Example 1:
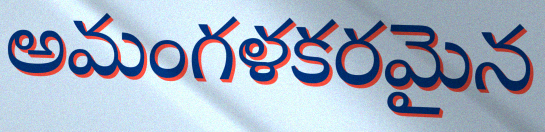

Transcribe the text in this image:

అమంగళకరమైన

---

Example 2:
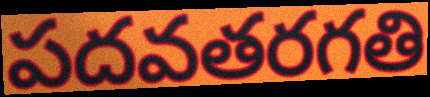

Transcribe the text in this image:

పదవతరగతి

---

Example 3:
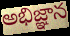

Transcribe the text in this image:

అభిజ్ఞాన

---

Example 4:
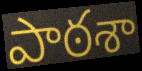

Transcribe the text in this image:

పాఠశా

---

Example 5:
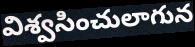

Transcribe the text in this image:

విశ్వసించులాగున